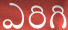
ఎరిగి